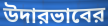
উদারভাবের